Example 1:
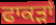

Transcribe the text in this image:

ਫਾਕੜਾਂ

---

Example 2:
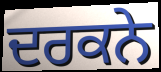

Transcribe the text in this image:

ਦਰਕਨੇ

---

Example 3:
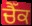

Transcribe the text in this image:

ਚੈੱਕ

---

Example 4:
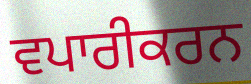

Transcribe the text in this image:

ਵਪਾਰੀਕਰਨ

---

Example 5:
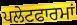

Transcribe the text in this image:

ਪਲੇਟਫਾਰਮਾਂ